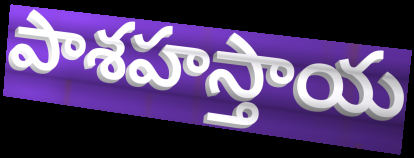
పాశహస్తాయ